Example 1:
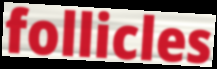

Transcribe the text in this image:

follicles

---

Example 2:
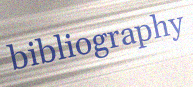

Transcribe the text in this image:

bibliography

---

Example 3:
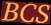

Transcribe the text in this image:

BCS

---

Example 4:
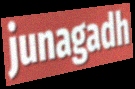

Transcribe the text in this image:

junagadh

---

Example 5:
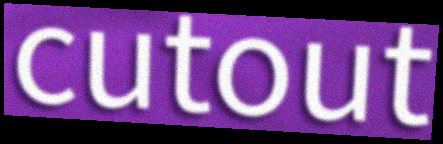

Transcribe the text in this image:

cutout